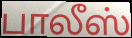
பாலீஸ்